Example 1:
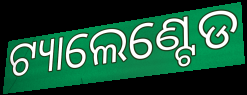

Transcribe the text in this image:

ଟ୍ୟାଲେଣ୍ଟେଡ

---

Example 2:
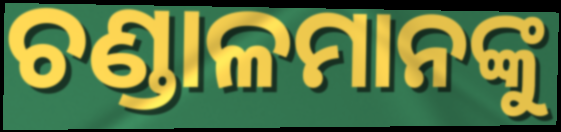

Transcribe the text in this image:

ଚଣ୍ଡାଳମାନଙ୍କୁ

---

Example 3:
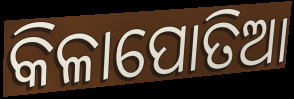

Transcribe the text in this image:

କିଳାପୋତିଆ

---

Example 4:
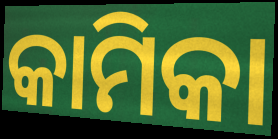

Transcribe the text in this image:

କାମିକା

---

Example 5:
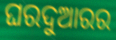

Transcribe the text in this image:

ଘରଦୁଆରର